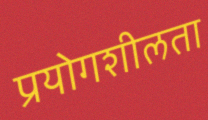
प्रयोगशीलता